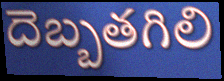
దెబ్బతగిలి